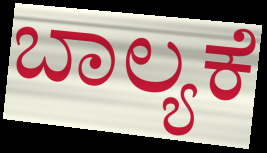
ಬಾಲ್ಯಕೆ